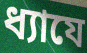
ধ্যাযে